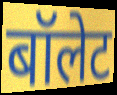
बॉलेट